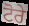
ਟੋਰੇ